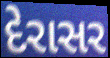
દેરાસર